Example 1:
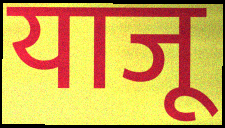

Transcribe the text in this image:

याजू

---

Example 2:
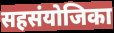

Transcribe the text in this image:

सहसंयोजिका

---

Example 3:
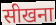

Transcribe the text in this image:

सीखना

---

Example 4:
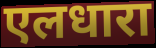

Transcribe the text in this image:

एलधारा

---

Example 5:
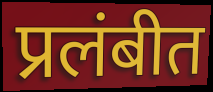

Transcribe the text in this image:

प्रलंबीत